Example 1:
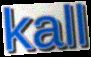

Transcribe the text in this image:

kall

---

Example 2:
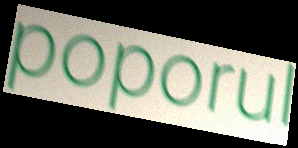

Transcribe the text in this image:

poporul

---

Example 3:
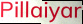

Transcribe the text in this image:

Pillaiyar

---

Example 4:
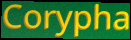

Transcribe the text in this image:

Corypha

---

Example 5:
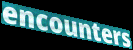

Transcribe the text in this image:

encounters